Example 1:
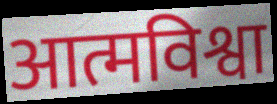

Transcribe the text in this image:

आत्मविश्वा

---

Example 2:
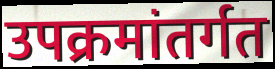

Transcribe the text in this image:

उपक्रमांतर्गत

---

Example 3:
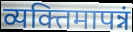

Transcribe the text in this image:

व्यक्तिमापन्नं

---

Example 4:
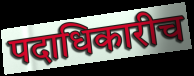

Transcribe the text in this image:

पदाधिकारीच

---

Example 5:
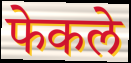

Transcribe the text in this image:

फेकले